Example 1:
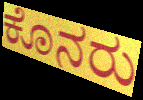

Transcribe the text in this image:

ಕೊನರು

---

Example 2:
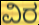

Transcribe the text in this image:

ವಿರ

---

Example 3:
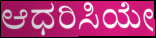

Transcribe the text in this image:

ಆಧರಿಸಿಯೇ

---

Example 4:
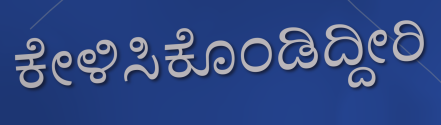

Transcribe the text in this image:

ಕೇಳಿಸಿಕೊಂಡಿದ್ದೀರಿ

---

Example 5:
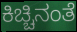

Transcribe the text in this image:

ಕಿಚ್ಚಿನಂತೆ